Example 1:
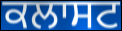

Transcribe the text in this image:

ਕਲਾਸਟ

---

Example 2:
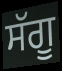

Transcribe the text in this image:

ਸੱਗੂ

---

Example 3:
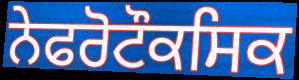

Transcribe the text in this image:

ਨੇਫਰੋਟੌਕਸਿਕ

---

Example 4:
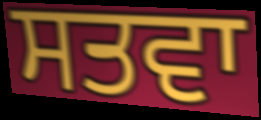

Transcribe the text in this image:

ਸਤਵਾ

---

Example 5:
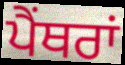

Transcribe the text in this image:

ਪੈਂਥਰਾਂ